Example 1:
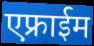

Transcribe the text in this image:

एफ्राईम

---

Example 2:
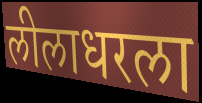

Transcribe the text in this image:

लीलाधरला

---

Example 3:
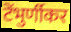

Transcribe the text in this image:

टेंभुर्णीकर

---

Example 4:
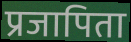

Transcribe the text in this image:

प्रजापिता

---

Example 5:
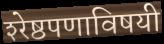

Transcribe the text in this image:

श्रेष्ठपणाविषयी